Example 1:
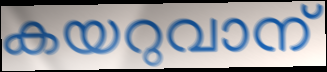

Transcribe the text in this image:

കയറുവാന്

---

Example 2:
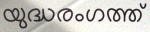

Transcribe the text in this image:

യുദ്ധരംഗത്ത്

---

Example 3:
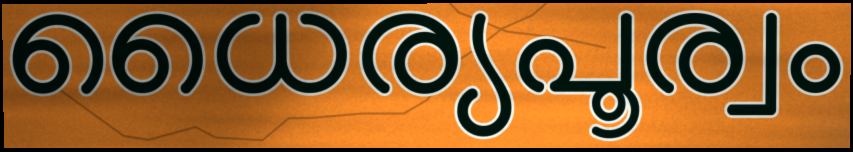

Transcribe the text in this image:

ധൈര്യപൂര്വം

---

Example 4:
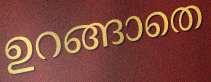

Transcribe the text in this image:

ഉറങ്ങാതെ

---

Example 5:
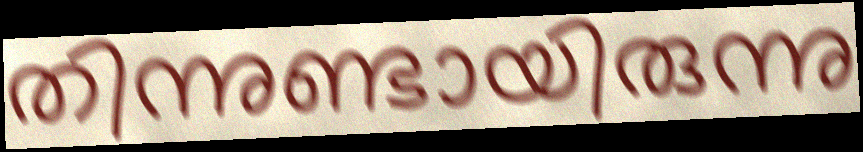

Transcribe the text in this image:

തിന്നുണ്ടായിരുന്നു